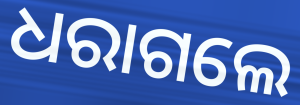
ଧରାଗଲେ